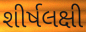
શીર્ષલક્ષી